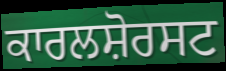
ਕਾਰਲਸ਼ੋਰਸਟ